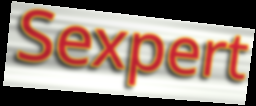
Sexpert